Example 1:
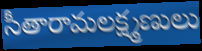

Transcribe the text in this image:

సీతారామలక్ష్మణులు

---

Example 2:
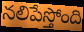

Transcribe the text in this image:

నలిపేస్తోంది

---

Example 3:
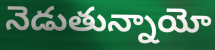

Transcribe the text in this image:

నెడుతున్నాయో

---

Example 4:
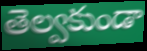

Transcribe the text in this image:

తెల్వకుండా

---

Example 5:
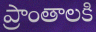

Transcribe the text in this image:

ప్రాంతాలకి